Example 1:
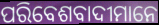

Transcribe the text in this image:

ପରିବେଶବାଦୀମାନେ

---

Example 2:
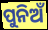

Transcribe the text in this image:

ପୁନିଅଁ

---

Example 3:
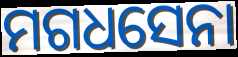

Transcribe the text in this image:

ମଗଧସେନା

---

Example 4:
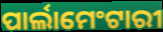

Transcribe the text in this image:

ପାର୍ଲାମେଂଟାରୀ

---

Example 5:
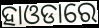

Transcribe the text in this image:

ହାଓଡାରେ